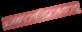
ചങ്ങാതിമാരോടു